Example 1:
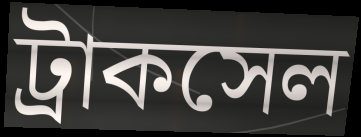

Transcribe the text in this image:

ট্রাকসেল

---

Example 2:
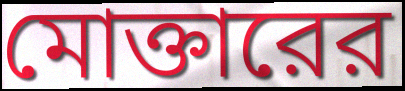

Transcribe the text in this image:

মোক্তারের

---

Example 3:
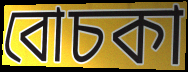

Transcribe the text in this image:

বোচকা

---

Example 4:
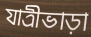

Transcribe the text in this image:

যাত্রীভাড়া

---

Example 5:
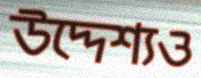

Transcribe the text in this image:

উদ্দেশ্যও